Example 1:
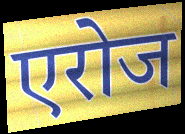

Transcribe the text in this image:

एरोज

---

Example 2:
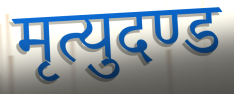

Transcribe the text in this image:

मृत्युदण्ड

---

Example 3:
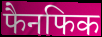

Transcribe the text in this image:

फैनफिक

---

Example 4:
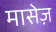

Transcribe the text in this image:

मासेज़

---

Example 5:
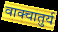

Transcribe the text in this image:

वाक्चातुर्य